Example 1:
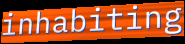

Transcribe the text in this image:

inhabiting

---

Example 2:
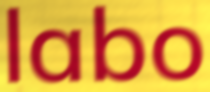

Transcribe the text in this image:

labo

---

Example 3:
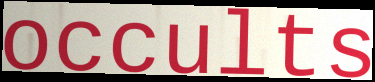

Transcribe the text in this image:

occults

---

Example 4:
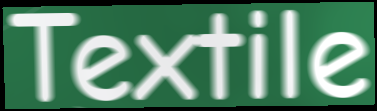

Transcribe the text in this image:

Textile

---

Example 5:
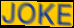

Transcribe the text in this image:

JOKE